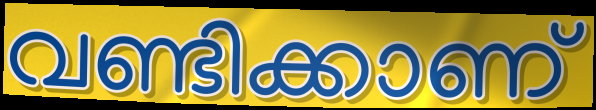
വണ്ടിക്കാണ്